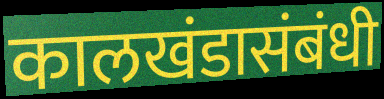
कालखंडासंबंधी